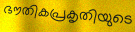
ഭൗതികപ്രകൃതിയുടെ